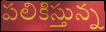
పలికిస్తున్న